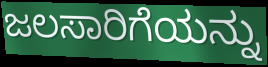
ಜಲಸಾರಿಗೆಯನ್ನು